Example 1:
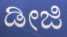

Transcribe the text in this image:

ಡೀಜಿ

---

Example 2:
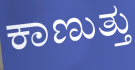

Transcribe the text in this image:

ಕಾಣುತ್ತು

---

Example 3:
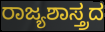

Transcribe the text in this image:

ರಾಜ್ಯಶಾಸ್ತ್ರದ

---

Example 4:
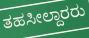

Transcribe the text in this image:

ತಹಸೀಲ್ದಾರರು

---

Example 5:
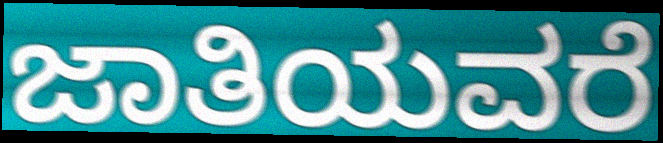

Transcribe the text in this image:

ಜಾತಿಯವರೆ